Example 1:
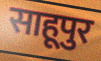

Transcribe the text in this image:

साहूपुर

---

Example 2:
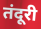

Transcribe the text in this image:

तंदूरी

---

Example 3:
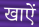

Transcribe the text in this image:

खाऐं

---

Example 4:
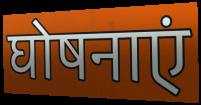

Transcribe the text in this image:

घोषनाएं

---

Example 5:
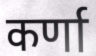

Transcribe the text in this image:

कर्णा